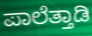
ಪಾಲೆತ್ತಾಡಿ